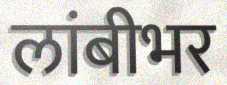
लांबीभर